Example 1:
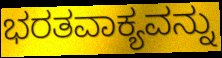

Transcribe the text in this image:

ಭರತವಾಕ್ಯವನ್ನು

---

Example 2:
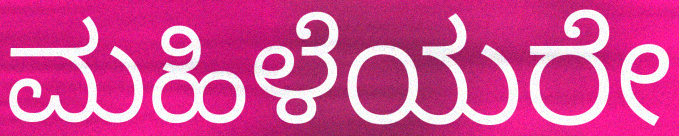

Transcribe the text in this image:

ಮಹಿಳೆಯರೇ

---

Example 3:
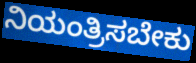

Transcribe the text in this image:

ನಿಯಂತ್ರಿಸಬೇಕು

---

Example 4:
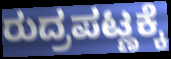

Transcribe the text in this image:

ರುದ್ರಪಟ್ಣಕ್ಕೆ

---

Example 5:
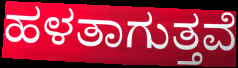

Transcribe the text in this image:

ಹಳತಾಗುತ್ತವೆ